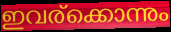
ഇവര്ക്കൊന്നും